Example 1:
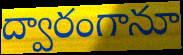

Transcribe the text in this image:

ద్వారంగానూ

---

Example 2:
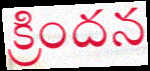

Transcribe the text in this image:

క్రిందన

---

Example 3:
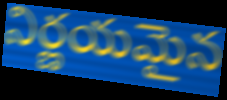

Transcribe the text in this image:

నిర్ణయమైన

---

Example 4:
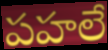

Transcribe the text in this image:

పహలే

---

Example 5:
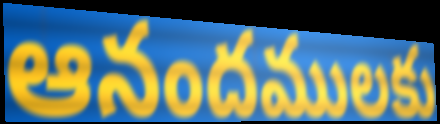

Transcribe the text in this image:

ఆనందములకు